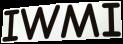
IWMI